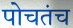
पोचतंच